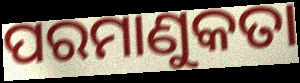
ପରମାଣୁକତା